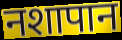
नशापान